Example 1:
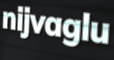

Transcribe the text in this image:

nijvaglu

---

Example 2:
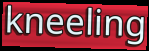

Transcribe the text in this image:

kneeling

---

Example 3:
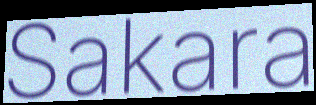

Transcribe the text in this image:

Sakara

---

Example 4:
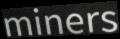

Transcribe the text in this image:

miners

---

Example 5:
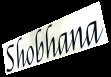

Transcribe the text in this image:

Shobhana